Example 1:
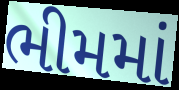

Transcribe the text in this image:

ભીમમાં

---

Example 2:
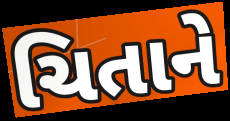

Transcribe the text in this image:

ચિતાને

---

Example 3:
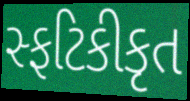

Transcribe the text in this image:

સ્ફટિકીકૃત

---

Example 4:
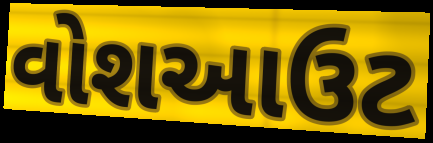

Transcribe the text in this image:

વોશઆઉટ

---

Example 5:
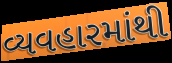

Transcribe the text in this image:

વ્યવહારમાંથી